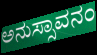
ಅನುಸ್ಸಾವನಂ